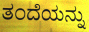
ತಂದೆಯನ್ನು